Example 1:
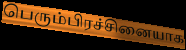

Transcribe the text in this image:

பெரும்பிரச்சினையாக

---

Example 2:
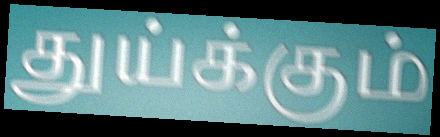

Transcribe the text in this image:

துய்க்கும்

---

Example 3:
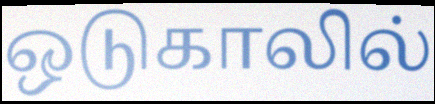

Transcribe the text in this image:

ஒடுகாலில்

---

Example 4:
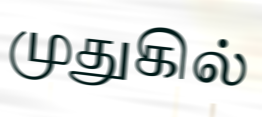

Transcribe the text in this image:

முதுகில்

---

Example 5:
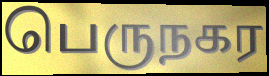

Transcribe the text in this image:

பெருநகர